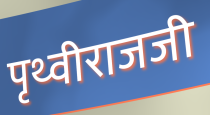
पृथ्वीराजजी